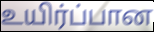
உயிர்ப்பான